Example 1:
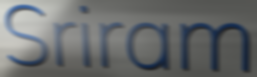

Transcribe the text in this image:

Sriram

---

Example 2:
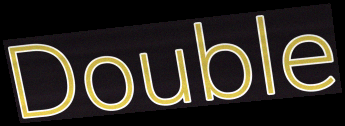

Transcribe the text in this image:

Double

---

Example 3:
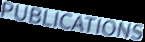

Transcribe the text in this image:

PUBLICATIONS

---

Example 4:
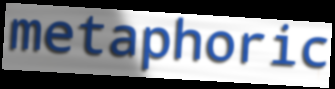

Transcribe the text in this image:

metaphoric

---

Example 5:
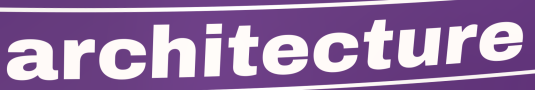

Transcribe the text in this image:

architecture